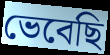
ভেবেছি